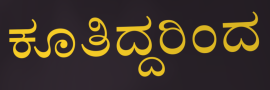
ಕೂತಿದ್ದರಿಂದ